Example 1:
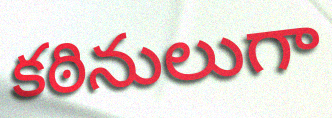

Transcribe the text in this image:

కఠినులుగా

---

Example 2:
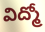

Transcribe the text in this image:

విద్మో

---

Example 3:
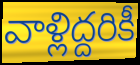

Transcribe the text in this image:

వాళ్లిద్దరికీ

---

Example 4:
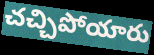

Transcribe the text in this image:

చచ్చిపోయారు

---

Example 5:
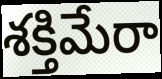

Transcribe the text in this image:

శక్తిమేరా